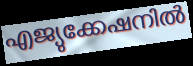
എജ്യുക്കേഷനിൽ